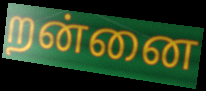
றன்னை